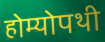
होम्योपथी